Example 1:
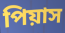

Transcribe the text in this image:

পিয়াস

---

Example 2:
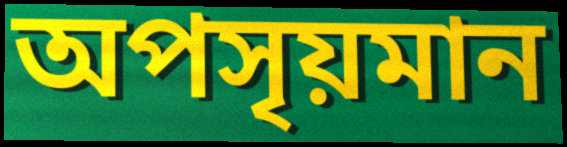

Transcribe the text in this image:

অপসৃয়মান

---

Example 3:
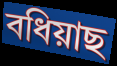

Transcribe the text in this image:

বধিয়াছ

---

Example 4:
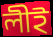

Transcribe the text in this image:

লীই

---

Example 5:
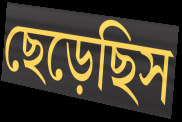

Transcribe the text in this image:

ছেড়েছিস